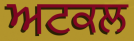
ਅਟਕਲ